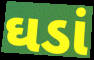
ઘડાં